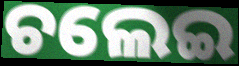
ଚଲେଇ